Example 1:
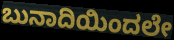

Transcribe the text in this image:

ಬುನಾದಿಯಿಂದಲೇ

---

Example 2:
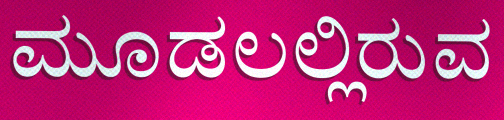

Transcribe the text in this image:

ಮೂಡಲಲ್ಲಿರುವ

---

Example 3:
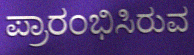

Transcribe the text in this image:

ಪ್ರಾರಂಭಿಸಿರುವ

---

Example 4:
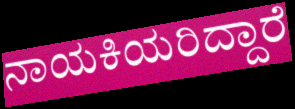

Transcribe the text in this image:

ನಾಯಕಿಯರಿದ್ದಾರೆ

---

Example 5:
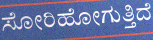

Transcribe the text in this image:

ಸೋರಿಹೋಗುತ್ತಿದೆ